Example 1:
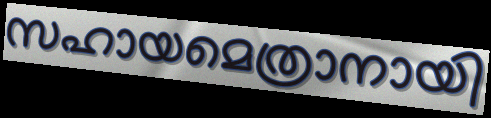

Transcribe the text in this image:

സഹായമെത്രാനായി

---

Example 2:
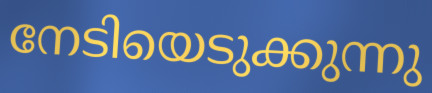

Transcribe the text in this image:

നേടിയെടുക്കുന്നു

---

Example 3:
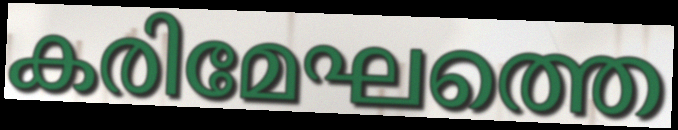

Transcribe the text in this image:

കരിമേഘത്തെ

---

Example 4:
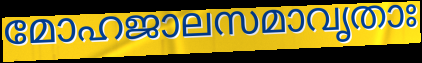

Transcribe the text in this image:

മോഹജാലസമാവൃതാഃ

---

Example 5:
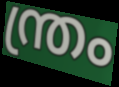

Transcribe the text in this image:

ന്ത്രം